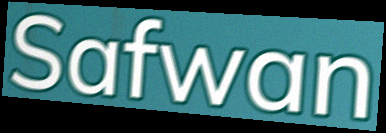
Safwan